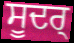
ਸੂਦਰ੍